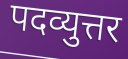
पदव्युत्तर